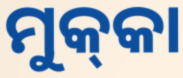
ମୁକ୍‌କା